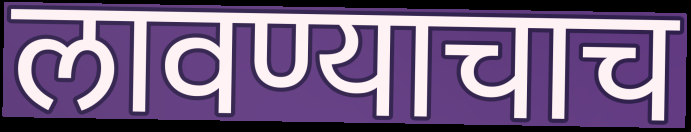
लावण्याचाच